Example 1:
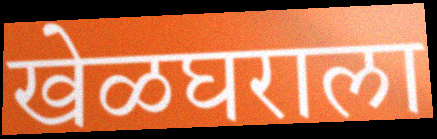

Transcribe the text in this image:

खेळघराला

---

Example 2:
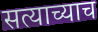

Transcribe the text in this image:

सत्याच्याच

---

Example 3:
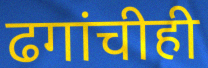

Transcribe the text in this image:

ढगांचीही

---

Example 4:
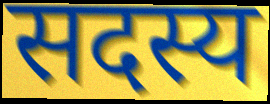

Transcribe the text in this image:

सदस्य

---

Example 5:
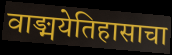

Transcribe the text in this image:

वाङ्मयेतिहासाचा